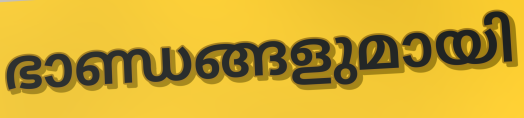
ഭാണ്ഡങ്ങളുമായി